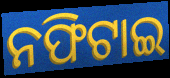
ନଫିଟାଇ